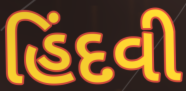
હિંદવી